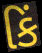
કિં